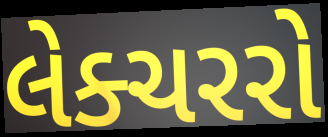
લેક્ચરરો